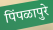
पिंपळापुरे